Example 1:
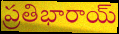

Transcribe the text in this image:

ప్రతిభారాయ్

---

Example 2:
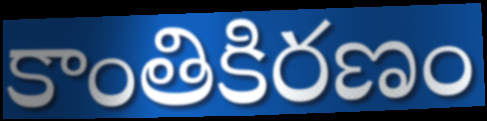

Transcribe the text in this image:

కాంతికిరణం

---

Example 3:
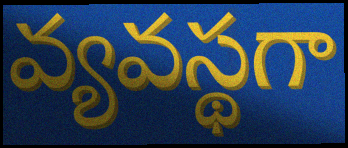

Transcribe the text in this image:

వ్యవస్థగా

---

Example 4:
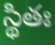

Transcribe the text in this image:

స్థితః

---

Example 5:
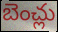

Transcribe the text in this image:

బెంచ్లు